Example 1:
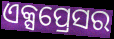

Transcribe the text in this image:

ଏକ୍ସପ୍ରେସର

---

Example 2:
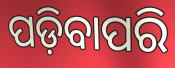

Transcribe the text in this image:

ପଡ଼ିବାପରି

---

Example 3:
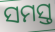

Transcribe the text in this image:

ସମସ୍ତ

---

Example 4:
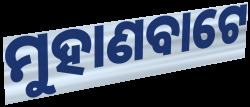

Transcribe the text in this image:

ମୁହାଣବାଟେ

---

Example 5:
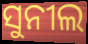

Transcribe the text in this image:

ସୁନୀଲ